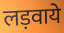
लड़वाये